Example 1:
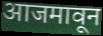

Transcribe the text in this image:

आजमावून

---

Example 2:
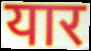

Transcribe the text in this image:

यार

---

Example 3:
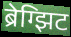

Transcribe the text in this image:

ब्रेग्झिट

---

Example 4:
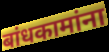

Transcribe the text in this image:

बांधकामांना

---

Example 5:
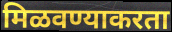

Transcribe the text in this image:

मिळवण्याकरता